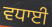
ਵਧਾਈ